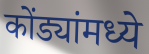
कोंड्यांमध्ये